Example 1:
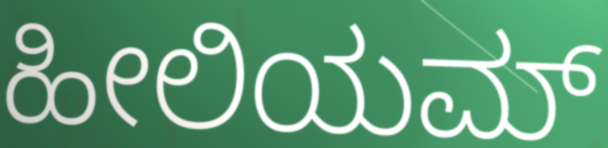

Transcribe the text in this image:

ಹೀಲಿಯಮ್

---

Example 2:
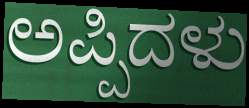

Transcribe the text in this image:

ಅಪ್ಪಿದಳು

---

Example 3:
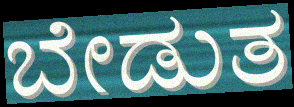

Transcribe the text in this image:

ಬೇಡುತ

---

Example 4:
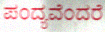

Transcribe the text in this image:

ಪಂದ್ಯವೆಂದರೆ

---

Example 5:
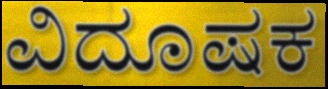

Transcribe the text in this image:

ವಿದೂಷಕ